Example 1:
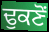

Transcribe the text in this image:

ਢੁਕਣੋਂ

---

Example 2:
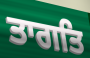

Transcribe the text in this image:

ਤਾਗਤਿ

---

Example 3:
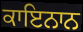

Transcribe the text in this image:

ਕਾਇਨਾਨ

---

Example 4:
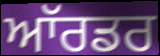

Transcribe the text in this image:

ਆੱਰਡਰ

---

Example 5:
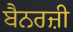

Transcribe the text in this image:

ਬੈਨਰਜ਼ੀ